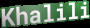
Khalili